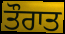
ਤੌਰਾਤ